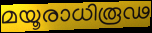
മയൂരാധിരൂഢ